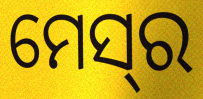
ମେସ୍‍ର